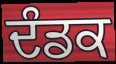
ਦੰਡਕ